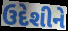
ઉદેશીને